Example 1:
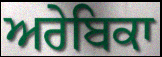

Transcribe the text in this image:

ਅਰੇਬਿਕਾ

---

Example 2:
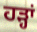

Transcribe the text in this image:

ਹਡ਼੍ਹਾਂ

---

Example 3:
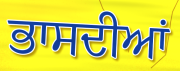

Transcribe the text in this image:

ਭਾਸਦੀਆਂ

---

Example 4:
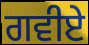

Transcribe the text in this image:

ਗਵੀਏ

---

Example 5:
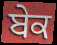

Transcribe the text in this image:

ਬੇਕ